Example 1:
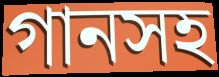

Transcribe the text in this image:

গানসহ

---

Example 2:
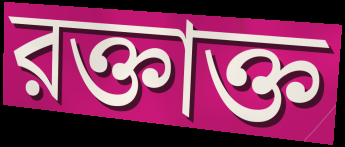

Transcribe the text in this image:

রক্তাক্ত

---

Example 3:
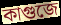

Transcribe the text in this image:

কাগুজে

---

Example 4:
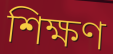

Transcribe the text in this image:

শিক্ষণ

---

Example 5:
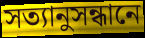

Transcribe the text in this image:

সত্যানুসন্ধানে